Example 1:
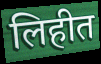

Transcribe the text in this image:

लिहीत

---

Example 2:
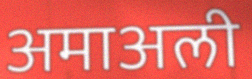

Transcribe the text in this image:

अमाअली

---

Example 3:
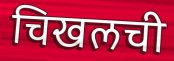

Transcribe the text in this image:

चिखलची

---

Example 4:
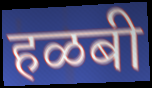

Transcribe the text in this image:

हळबी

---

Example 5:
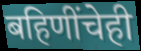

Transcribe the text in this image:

बहिणींचेही